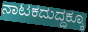
ನಾಟಕದುದ್ದಕ್ಕೂ